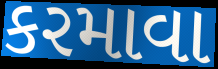
કરમાવા